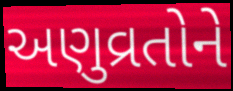
અણુવ્રતોને